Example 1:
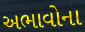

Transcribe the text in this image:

અભાવોના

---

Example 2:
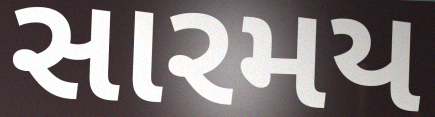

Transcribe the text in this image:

સારમય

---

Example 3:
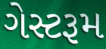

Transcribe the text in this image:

ગેસ્ટરૂમ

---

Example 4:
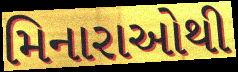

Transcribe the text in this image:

મિનારાઓથી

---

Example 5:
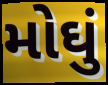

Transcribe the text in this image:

મોઘું